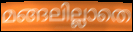
മങ്ങലില്ലാതെ